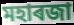
মহাৰজা